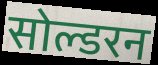
सोल्डरन